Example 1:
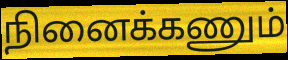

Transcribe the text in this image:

நினைக்கணும்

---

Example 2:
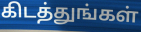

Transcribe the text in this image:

கிடத்துங்கள்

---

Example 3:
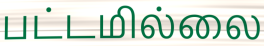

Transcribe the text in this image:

பட்டமில்லை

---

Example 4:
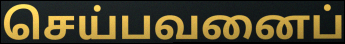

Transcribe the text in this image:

செய்பவனைப்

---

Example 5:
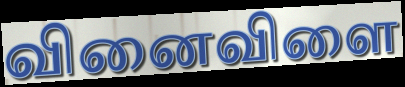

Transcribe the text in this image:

வினைவிளை